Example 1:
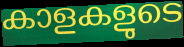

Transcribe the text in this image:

കാളകളുടെ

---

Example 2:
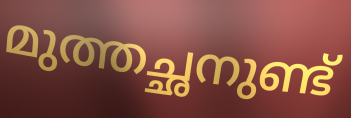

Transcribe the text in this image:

മുത്തച്ഛനുണ്ട്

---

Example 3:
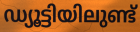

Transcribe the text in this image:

ഡ്യൂട്ടിയിലുണ്ട്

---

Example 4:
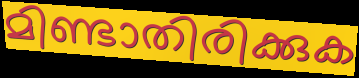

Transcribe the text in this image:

മിണ്ടാതിരിക്കുക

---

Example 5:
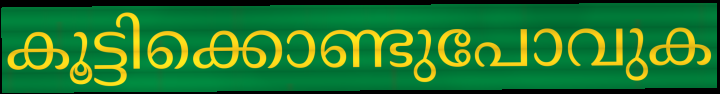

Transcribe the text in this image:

കൂട്ടിക്കൊണ്ടുപോവുക